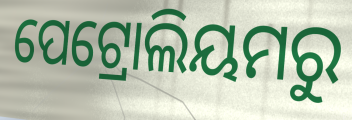
ପେଟ୍ରୋଲିୟମରୁ